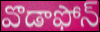
వొడాఫోన్